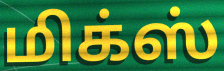
மிக்ஸ்